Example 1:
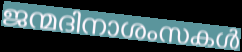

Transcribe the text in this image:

ജന്മദിനാശംസകൾ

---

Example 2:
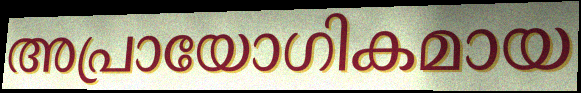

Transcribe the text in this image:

അപ്രായോഗികമായ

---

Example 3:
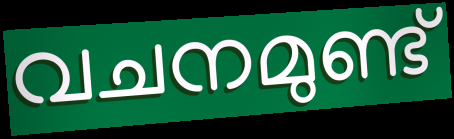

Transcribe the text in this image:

വചനമുണ്ട്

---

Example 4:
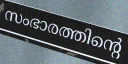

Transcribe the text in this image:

സംഭാരത്തിന്റെ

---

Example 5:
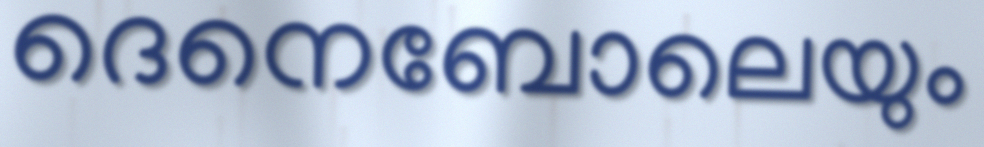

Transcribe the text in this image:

ദെനെബോലെയും